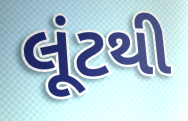
લૂંટથી